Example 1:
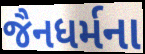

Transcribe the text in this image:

જૈનધર્મના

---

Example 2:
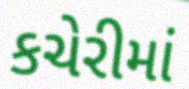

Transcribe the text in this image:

કચેરીમાં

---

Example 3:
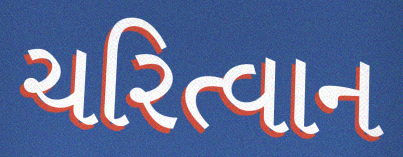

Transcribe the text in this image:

ચરિત્વાન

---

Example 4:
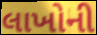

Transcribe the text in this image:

લાખોની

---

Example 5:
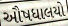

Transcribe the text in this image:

ઔષધાલયો